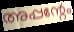
അപ്പന്റേം